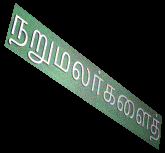
நறுமலர்களைத்